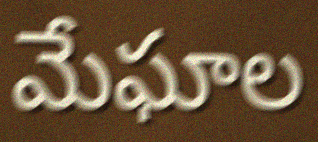
మేఘాల